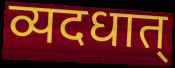
व्यदधात्